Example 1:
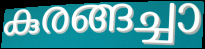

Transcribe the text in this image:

കുരങ്ങച്ചാ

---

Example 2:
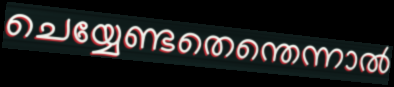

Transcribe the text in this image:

ചെയ്യേണ്ടതെന്തെന്നാൽ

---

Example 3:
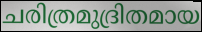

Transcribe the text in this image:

ചരിത്രമുദ്രിതമായ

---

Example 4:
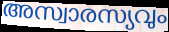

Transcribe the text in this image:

അസ്വാരസ്യവും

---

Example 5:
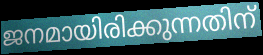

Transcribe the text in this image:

ജനമായിരിക്കുന്നതിന്